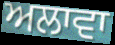
ਅਲਾਵਾ